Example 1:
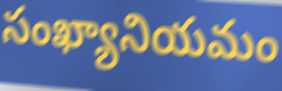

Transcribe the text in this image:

సంఖ్యానియమం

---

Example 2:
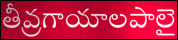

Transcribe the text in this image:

తీవ్రగాయాలపాలై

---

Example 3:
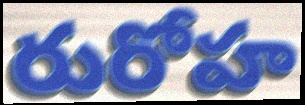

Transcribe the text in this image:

రురోహ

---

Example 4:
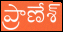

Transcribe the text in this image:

ప్రాణేశ్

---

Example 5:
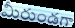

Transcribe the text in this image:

మీరుండగా